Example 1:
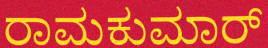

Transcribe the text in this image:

ರಾಮಕುಮಾರ್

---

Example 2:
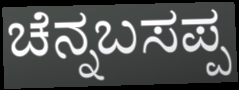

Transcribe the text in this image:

ಚೆನ್ನಬಸಪ್ಪ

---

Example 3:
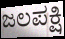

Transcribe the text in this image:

ಜಲಪಕ್ಷಿ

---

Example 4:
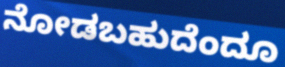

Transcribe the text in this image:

ನೋಡಬಹುದೆಂದೂ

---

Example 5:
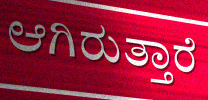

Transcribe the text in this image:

ಆಗಿರುತ್ತಾರೆ